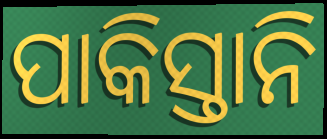
ପାକିସ୍ତାନି